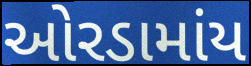
ઓરડામાંય